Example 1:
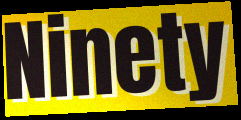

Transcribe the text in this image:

Ninety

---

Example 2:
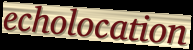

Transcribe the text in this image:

echolocation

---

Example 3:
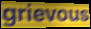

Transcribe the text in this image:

grievous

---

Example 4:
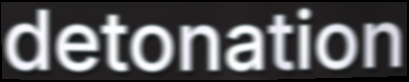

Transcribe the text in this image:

detonation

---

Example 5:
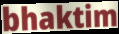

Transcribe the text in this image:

bhaktim